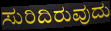
ಸುರಿದಿರುವುದು